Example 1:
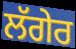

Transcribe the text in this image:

ਲੱਗੇਰ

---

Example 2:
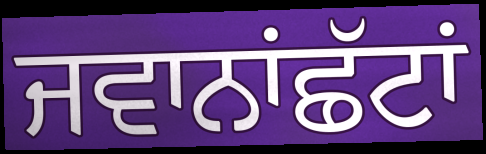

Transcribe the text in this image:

ਜਵਾਨਾਂਛੱਟਾਂ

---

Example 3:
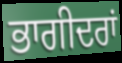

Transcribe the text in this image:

ਭਾਗੀਦਰਾਂ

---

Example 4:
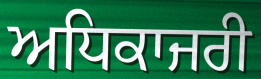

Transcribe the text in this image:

ਅਧਿਕਾਜਰੀ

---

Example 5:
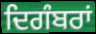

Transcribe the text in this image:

ਦਿਗੰਬਰਾਂ